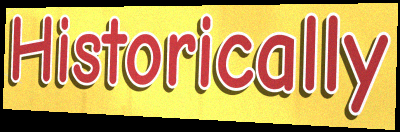
Historically